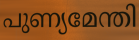
പുണ്യമേന്തി